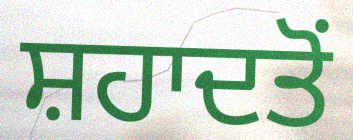
ਸ਼ਹਾਦਤੋਂ